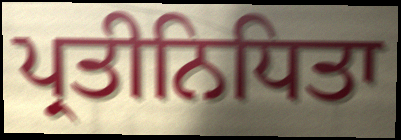
ਪ੍ਰਤੀਨਿਧਿਤਾ